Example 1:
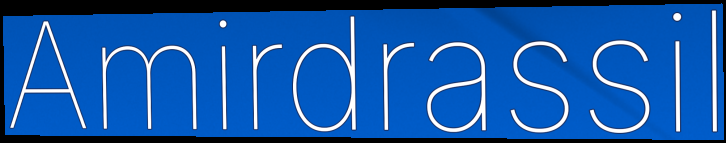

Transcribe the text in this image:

Amirdrassil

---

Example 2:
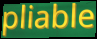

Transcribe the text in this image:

pliable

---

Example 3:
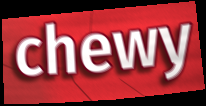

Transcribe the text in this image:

chewy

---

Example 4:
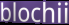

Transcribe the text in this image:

blochii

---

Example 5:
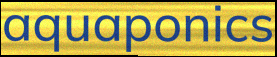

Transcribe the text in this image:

aquaponics